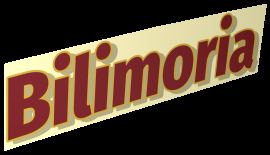
Bilimoria